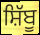
ਸ਼ਿੱਬੂ